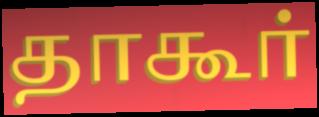
தாகூர்